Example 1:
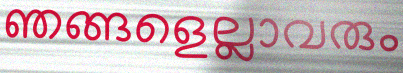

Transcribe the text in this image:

ഞങ്ങളെല്ലാവരും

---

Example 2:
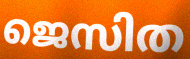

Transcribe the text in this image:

ജെസിത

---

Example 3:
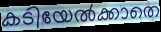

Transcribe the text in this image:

കടിയേൽക്കാതെ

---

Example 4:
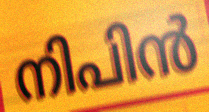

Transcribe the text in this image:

നിപിൻ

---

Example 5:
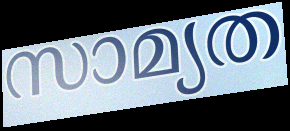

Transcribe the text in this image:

സാമ്യത